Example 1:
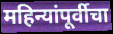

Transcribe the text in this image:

महिन्यांपूर्वीचा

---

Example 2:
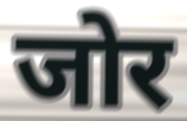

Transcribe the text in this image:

जोर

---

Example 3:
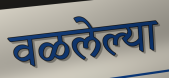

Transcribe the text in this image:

वळलेल्या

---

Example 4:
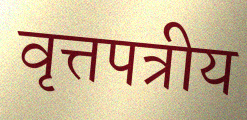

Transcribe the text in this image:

वृत्तपत्रीय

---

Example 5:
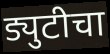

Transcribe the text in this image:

ड्युटीचा